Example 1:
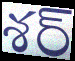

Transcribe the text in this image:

శర్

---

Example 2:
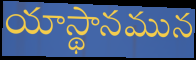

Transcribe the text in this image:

యాస్థానమున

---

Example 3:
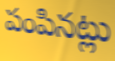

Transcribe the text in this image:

పంపినట్లు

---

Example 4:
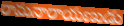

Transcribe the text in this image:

రామనారాయణుడు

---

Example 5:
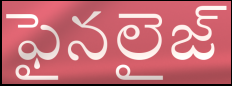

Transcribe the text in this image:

ఫైనలైజ్